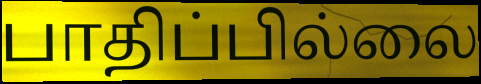
பாதிப்பில்லை